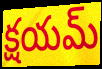
క్షయమ్